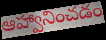
ఆహ్వానించడం